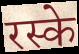
रस्के